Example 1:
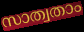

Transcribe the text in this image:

സാത്വതാം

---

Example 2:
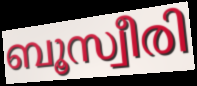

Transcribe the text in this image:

ബൂസ്വീരി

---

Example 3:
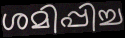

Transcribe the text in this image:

ശമിപ്പിച്ച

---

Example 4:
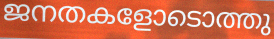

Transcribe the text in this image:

ജനതകളോടൊത്തു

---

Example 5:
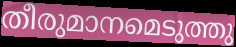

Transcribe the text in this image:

തീരുമാനമെടുത്തു